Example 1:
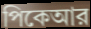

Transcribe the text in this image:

পিকেআর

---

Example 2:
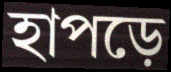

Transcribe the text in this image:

হাপড়ে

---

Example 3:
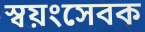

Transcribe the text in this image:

স্বয়ংসেবক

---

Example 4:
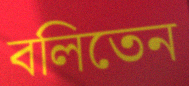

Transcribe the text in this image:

বলিতেন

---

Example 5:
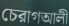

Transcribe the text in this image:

চেরাগআলী